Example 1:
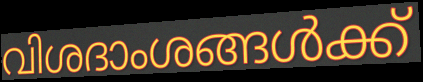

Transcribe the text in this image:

വിശദാംശങ്ങൾക്ക്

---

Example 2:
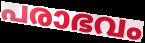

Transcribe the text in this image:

പരാഭവം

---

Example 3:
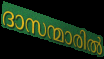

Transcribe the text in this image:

ദാസന്മാരിൽ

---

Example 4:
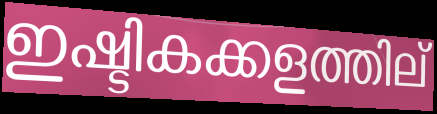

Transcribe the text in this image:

ഇഷ്ടികക്കളത്തില്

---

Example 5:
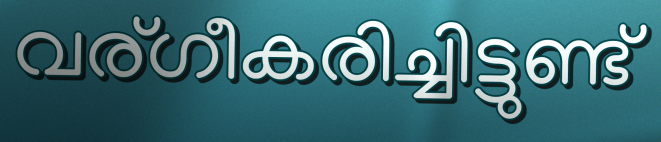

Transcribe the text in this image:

വര്ഗീകരിച്ചിട്ടുണ്ട്